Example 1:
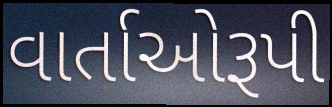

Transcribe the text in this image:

વાર્તાઓરૂપી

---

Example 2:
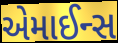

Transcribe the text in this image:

એમાઈન્સ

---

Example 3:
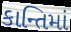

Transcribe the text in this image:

કાન્તિમાં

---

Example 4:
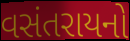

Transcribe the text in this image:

વસંતરાયનો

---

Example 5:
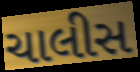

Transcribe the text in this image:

ચાલીસ